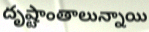
దృష్టాంతాలున్నాయి